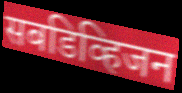
सबडिव्हिजन